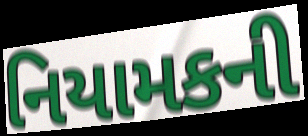
નિયામકની